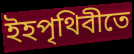
ইহপৃথিবীতে